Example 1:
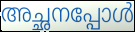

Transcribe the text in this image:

അച്ഛനപ്പോൾ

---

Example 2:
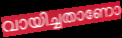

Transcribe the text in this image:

വായിച്ചതാണോ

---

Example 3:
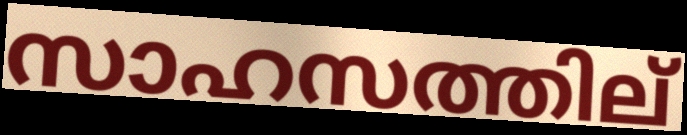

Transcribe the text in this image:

സാഹസത്തില്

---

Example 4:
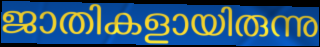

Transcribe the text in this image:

ജാതികളായിരുന്നു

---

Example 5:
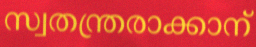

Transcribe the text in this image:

സ്വതന്ത്രരാക്കാന്